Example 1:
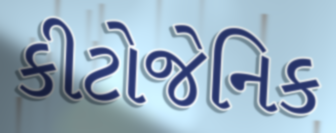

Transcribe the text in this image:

કીટોજેનિક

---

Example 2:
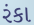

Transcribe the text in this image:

રંકા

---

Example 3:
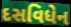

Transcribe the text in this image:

દસવિધેન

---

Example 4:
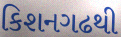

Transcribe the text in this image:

કિશનગઢથી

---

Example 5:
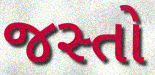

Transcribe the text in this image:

જસ્તો